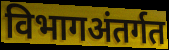
विभागअंतर्गत